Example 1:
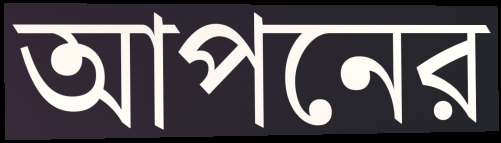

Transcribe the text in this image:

আপনের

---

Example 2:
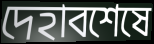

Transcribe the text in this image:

দেহাবশেষে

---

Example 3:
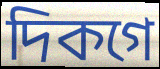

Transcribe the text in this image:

দিকগে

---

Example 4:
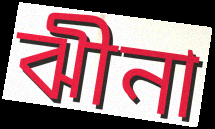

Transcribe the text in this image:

ঝীনা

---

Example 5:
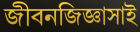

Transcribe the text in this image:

জীবনজিজ্ঞাসাই